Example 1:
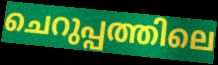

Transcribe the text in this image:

ചെറുപ്പത്തിലെ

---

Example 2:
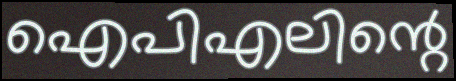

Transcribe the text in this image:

ഐപിഎലിന്റെ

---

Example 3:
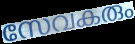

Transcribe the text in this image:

സേവകരും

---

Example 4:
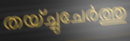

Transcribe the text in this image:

തയ്ച്ചുചേർത്തു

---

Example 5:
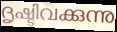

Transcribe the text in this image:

ദൃഷ്ടിവക്കുന്നു